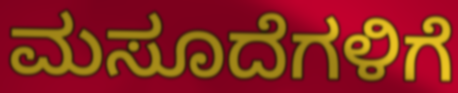
ಮಸೂದೆಗಳಿಗೆ